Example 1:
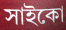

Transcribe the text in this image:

সাইকো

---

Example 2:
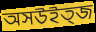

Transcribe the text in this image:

অসউইত্জ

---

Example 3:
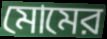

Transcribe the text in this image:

মোমের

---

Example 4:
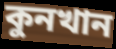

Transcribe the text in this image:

কুনখান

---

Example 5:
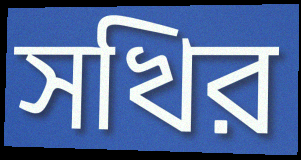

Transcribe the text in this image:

সখির